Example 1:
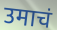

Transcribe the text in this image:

उमाचं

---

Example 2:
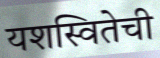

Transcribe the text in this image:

यशस्वितेची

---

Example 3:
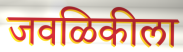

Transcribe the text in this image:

जवळिकीला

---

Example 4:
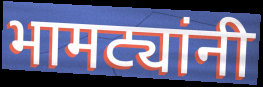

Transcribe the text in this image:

भामट्यांनी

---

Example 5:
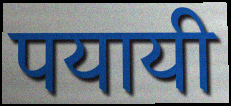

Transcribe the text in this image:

पयायी